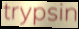
trypsin